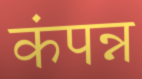
कंपन्न